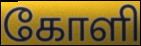
கோளி